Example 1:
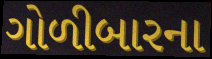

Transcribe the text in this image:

ગોળીબારના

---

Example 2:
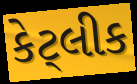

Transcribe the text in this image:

કેટ્લીક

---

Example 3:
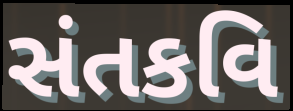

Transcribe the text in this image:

સંતકવિ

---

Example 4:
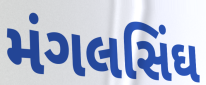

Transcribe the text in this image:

મંગલસિંઘ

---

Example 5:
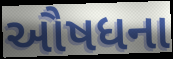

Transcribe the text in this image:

ઔષધના